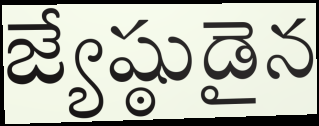
జ్యేష్ఠుడైన